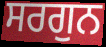
ਸਰਗੁਨ